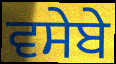
ਵਸੇਬੇ